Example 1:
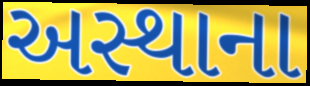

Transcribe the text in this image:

અસ્થાના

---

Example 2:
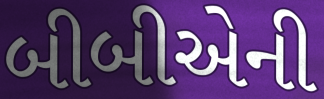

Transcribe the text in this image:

બીબીએની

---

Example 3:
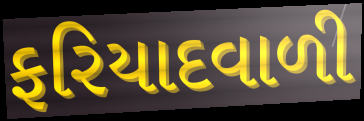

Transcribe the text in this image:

ફરિયાદવાળી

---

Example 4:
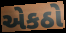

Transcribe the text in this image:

એકઠો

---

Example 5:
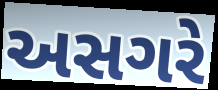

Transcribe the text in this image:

અસગરે